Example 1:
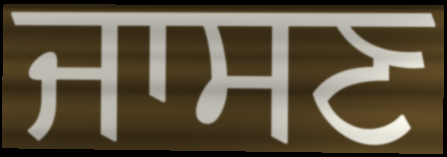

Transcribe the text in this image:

ਜਾਸਣ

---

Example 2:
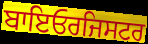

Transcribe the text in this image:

ਬਾਇਓਰਜਿਸਟਰ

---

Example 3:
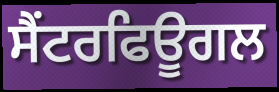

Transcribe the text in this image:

ਸੈਂਟਰਫਿਊਗਲ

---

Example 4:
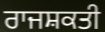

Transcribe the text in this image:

ਰਾਜਸ਼ਕਤੀ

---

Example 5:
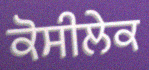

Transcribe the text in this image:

ਕੋਸੀਲੇਕ